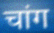
चांग